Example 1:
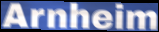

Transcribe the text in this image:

Arnheim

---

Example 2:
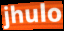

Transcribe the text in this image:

jhulo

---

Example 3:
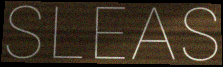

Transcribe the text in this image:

SLEAS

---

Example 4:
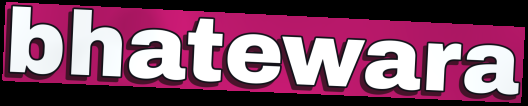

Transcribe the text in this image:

bhatewara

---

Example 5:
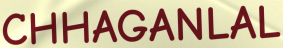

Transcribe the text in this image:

CHHAGANLAL